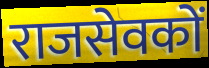
राजसेवकों